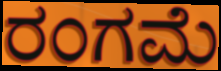
ರಂಗಮೆ